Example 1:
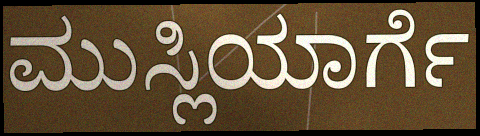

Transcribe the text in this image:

ಮುಸ್ಲಿಯಾರ್ಗೆ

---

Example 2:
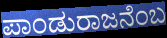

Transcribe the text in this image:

ಪಾಂಡುರಾಜನೆಂಬ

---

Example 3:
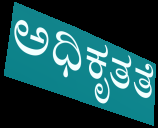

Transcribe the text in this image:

ಅಧಿಕೃತತೆ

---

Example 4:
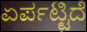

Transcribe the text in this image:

ಏರ್ಪಟ್ಟಿದೆ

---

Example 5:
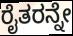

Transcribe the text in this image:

ರೈತರನ್ನೇ